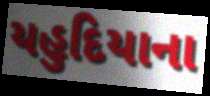
યહુદિયાના